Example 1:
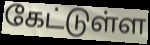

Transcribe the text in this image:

கேட்டுள்ள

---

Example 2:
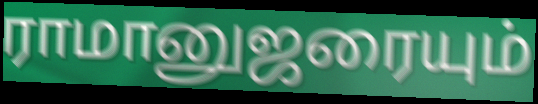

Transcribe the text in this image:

ராமானுஜரையும்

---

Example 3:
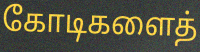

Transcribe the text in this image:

கோடிகளைத்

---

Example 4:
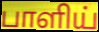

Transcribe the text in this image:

பாளிய்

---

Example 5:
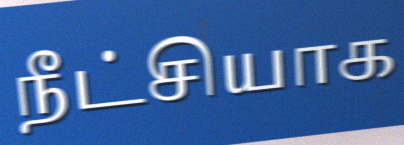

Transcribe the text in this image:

நீட்சியாக